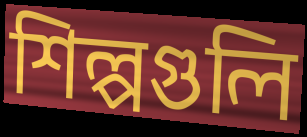
শিল্পগুলি